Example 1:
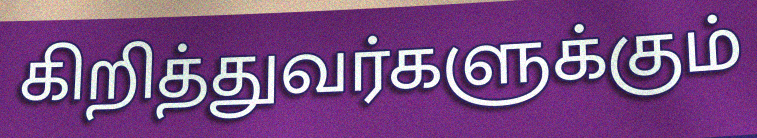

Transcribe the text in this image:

கிறித்துவர்களுக்கும்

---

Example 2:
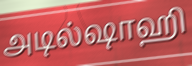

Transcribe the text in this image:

அடில்ஷாஹி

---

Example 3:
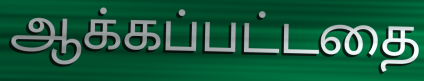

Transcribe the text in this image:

ஆக்கப்பட்டதை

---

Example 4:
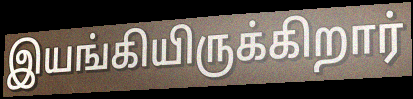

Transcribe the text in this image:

இயங்கியிருக்கிறார்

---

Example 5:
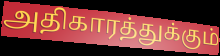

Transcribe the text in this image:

அதிகாரத்துக்கும்